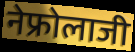
नेफ्रोलाजी